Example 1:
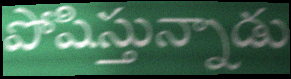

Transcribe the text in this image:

పోషిస్తున్నాడు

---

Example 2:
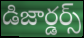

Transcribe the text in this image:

డిజార్డర్స్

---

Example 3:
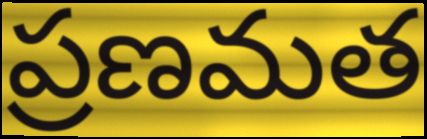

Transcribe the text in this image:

ప్రణమత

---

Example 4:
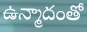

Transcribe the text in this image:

ఉన్మాదంతో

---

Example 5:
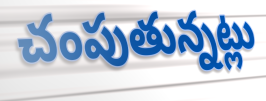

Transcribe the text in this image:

చంపుతున్నట్లు